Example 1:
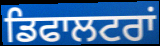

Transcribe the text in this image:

ਡਿਫਾਲਟਰਾਂ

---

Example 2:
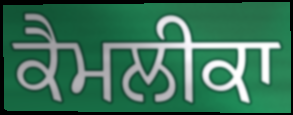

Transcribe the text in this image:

ਕੈਮਲੀਕਾ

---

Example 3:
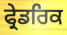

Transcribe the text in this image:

ਫ੍ਰੇਡਰਿਕ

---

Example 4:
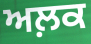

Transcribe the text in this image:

ਅਲ਼ਕ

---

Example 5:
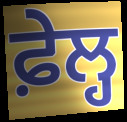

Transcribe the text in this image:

ਫ਼ੇਲ੍ਹ